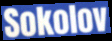
Sokolov